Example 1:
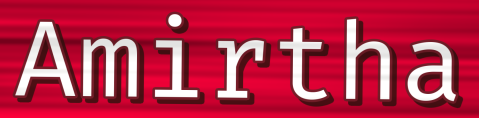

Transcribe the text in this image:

Amirtha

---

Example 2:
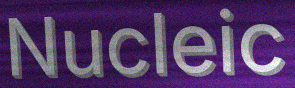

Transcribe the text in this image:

Nucleic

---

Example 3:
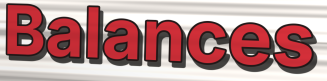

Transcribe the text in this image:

Balances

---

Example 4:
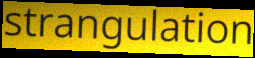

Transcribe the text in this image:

strangulation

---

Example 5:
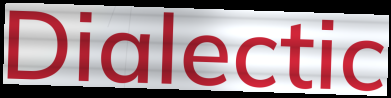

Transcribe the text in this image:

Dialectic